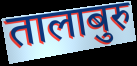
तालाबुरु